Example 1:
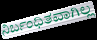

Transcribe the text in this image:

ನಿರ್ಬಂಧಿತವಾಗಿಲ್ಲ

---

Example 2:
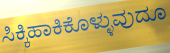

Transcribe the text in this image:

ಸಿಕ್ಕಿಹಾಕಿಕೊಳ್ಳುವುದೂ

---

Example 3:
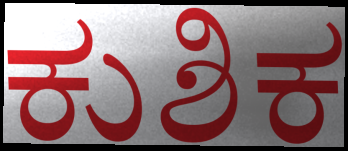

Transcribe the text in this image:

ಕುಶಿಕ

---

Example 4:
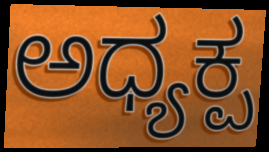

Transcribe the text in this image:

ಅಧ್ಯಕ್ಪ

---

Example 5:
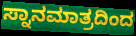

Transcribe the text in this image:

ಸ್ನಾನಮಾತ್ರದಿಂದ